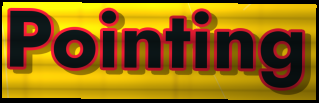
Pointing